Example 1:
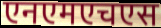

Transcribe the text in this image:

एनएमएचएस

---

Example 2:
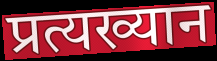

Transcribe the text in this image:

प्रत्यख्यान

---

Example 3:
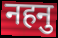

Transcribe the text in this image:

नहनु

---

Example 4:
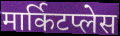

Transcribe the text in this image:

मार्किटप्लेस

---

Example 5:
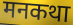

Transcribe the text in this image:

मनकथा